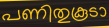
പണിതുകൂടാ